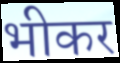
भीकर